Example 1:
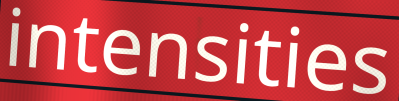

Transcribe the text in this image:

intensities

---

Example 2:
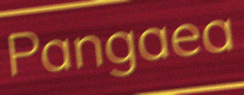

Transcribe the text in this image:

Pangaea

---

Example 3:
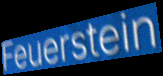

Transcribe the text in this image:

Feuerstein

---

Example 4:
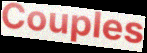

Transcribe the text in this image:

Couples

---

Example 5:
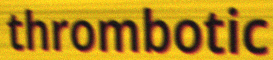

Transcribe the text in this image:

thrombotic